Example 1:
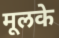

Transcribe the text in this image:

मूलके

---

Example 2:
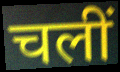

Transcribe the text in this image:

चलीं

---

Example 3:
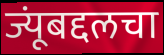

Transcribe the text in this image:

ज्यूंबद्दलचा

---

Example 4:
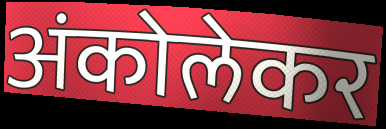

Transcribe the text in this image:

अंकोलेकर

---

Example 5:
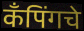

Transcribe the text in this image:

कँपिंगचे